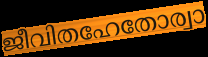
ജീവിതഹേതോര്വാ